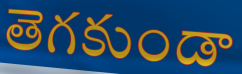
తెగకుండా